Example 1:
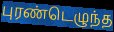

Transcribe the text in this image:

புரண்டெழுந்த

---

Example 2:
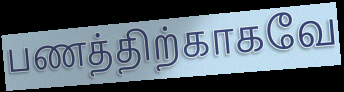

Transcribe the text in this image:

பணத்திற்காகவே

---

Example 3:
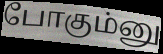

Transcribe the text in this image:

போகும்னு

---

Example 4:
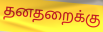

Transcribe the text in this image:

தனதறைக்கு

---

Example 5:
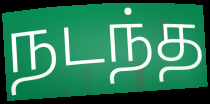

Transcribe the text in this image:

நடந்த